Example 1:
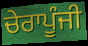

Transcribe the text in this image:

ਚੇਰਾਪੂੰਜੀ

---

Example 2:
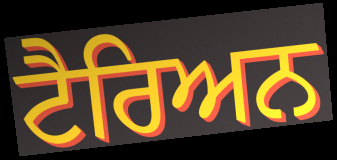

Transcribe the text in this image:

ਟੈਰਿਅਨ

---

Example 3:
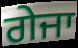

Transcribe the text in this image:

ਗੇਜਾ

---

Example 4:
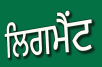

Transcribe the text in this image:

ਲਿਗਮੈਂਟ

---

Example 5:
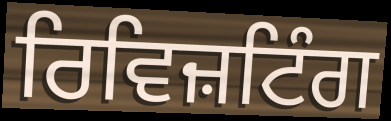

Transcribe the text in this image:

ਰਿਵਿਜ਼ਟਿੰਗ